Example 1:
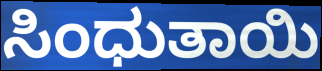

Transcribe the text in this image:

ಸಿಂಧುತಾಯಿ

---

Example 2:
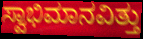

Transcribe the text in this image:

ಸ್ವಾಭಿಮಾನವಿತ್ತು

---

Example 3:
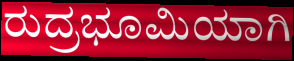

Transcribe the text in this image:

ರುದ್ರಭೂಮಿಯಾಗಿ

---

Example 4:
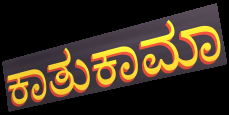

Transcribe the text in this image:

ಕಾತುಕಾಮಾ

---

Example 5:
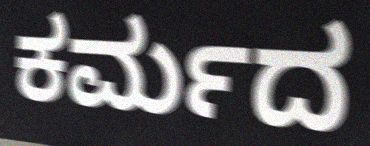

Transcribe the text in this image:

ಕರ್ಮದ